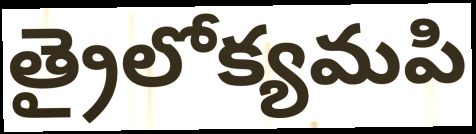
త్రైలోక్యమపి